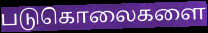
படுகொலைகளை